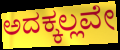
ಅದಕ್ಕಲ್ಲವೇ